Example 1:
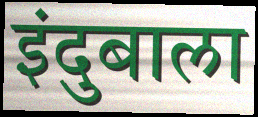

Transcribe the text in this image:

इंदुबाला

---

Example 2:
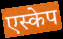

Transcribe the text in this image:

एस्केप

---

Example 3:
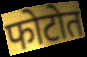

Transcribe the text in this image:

फोटोत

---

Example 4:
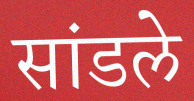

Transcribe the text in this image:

सांडले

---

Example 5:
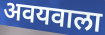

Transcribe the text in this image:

अवयवाला